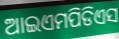
ଆଇଏମପିଡିଏସ